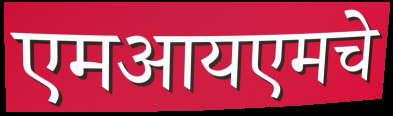
एमआयएमचे